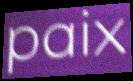
paix